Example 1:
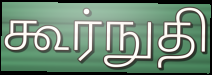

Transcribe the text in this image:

கூர்நுதி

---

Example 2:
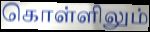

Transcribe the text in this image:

கொள்ளிலும்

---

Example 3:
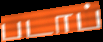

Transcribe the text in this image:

படாப்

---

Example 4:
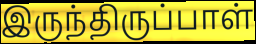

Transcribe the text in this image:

இருந்திருப்பாள்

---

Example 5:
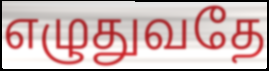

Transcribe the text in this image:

எழுதுவதே